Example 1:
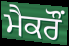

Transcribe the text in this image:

ਮੈਕਰੌਂ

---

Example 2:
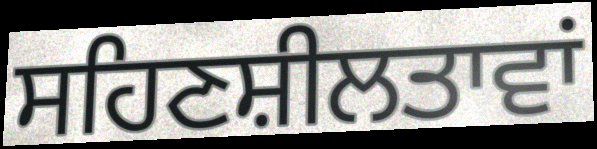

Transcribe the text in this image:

ਸਹਿਣਸ਼ੀਲਤਾਵਾਂ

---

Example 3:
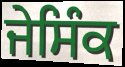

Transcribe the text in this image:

ਜੇਸਿੰਕ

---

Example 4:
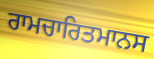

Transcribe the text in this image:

ਰਾਮਚਾਰਿਤਮਾਨਸ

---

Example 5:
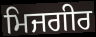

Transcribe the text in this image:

ਮਿਜਗੀਰ